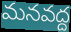
మనవద్ద